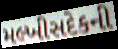
મલ્ખીસદેકની